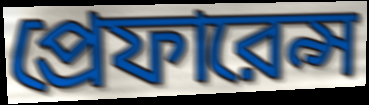
প্রেফারেন্স